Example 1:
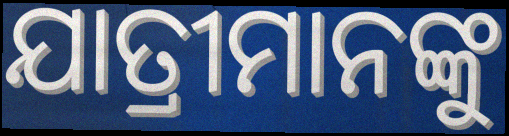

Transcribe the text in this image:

ଯାତ୍ରୀମାନଙ୍କୁ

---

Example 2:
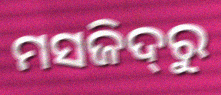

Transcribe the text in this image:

ମସଜିଦ୍‌ରୁ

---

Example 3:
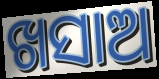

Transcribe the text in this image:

ଖସାଅ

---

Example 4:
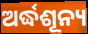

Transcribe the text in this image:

ଅର୍ଦ୍ଧଶୂନ୍ୟ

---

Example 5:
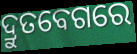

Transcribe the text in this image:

ଦ୍ରୁତବେଗରେ